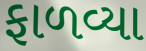
ફાળવ્યા